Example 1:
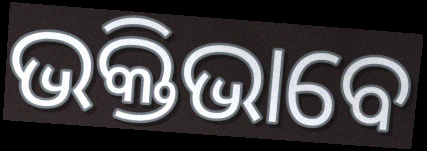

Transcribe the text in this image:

ଭକ୍ତିଭାବେ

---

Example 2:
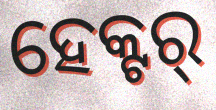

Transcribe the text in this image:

ହେକ୍ଟର୍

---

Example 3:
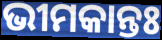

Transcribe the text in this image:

ଭୀମକାନ୍ତଃ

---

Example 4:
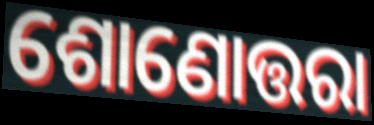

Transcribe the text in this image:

ଶୋଣୋତ୍ତରା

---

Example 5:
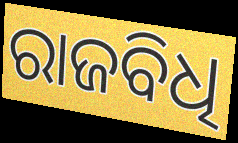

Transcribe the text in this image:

ରାଜବିଧି